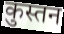
कुस्तन